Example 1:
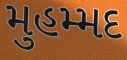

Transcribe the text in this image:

મુહમ્મદ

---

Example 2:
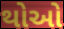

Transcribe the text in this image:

થોઓ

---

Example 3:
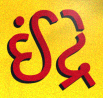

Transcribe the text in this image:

ઈંદ્રે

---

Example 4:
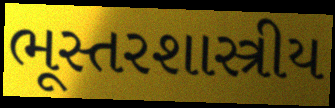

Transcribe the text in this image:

ભૂસ્તરશાસ્ત્રીય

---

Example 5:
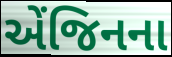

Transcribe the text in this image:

એંજિનના